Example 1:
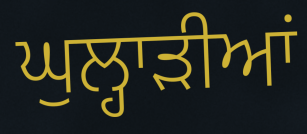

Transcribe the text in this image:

ਘੁਲ੍ਹਾੜੀਆਂ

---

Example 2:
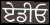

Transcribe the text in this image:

ਏਡੀਓ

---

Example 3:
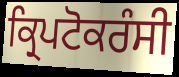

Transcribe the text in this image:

ਕ੍ਰਿਪਟੋਕਰੰਸੀ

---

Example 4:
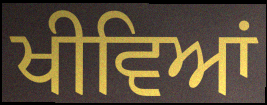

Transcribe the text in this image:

ਖੀਵਿਆਂ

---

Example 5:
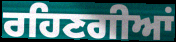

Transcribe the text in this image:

ਰਹਿਣਗੀਆਂ